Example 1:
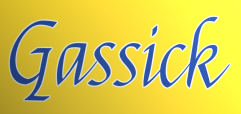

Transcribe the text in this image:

Gassick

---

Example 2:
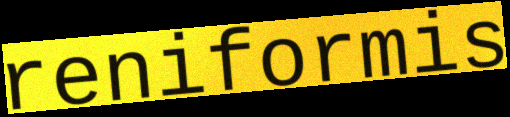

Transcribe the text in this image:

reniformis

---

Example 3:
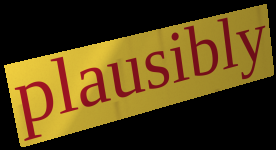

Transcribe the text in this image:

plausibly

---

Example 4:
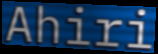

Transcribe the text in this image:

Ahiri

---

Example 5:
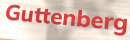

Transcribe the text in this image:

Guttenberg